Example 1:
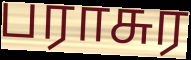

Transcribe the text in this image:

பராசுர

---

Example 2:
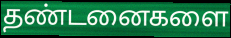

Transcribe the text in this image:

தண்டனைகளை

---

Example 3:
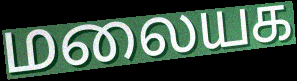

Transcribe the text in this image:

மலையக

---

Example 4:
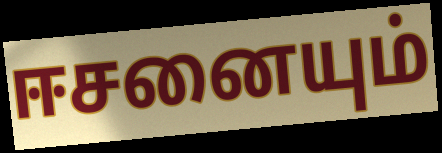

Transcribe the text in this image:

ஈசனையும்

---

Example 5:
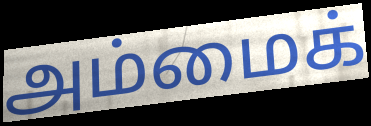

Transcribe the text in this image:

அம்மைக்